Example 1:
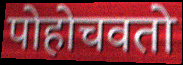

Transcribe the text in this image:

पोहोचवतो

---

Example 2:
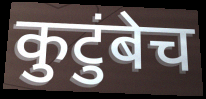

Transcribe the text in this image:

कुटुंबेच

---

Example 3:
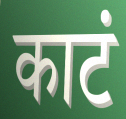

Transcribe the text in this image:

काटं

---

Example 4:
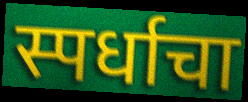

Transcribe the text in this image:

स्पर्धाचा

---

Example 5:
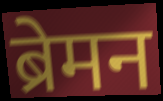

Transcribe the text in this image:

ब्रेमन